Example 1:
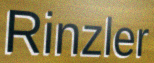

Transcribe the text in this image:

Rinzler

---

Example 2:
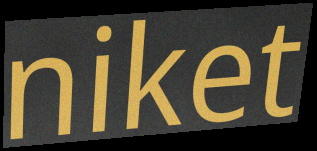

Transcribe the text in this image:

niket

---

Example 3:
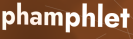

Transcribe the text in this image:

phamphlet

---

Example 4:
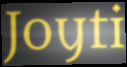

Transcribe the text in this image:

Joyti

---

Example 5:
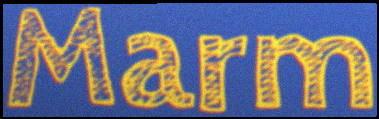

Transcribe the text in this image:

Marm